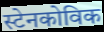
स्टेनकोविक